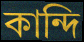
কান্দি